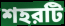
শহরটি